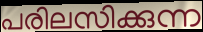
പരിലസിക്കുന്ന